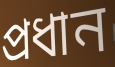
প্ৰধান